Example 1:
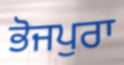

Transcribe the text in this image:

ਭੋਜਪੁਰਾ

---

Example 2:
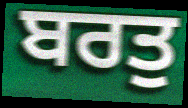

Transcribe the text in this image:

ਬਰਤੁ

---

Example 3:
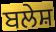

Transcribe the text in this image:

ਬਲੇਸ਼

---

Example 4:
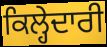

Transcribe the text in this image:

ਕਿਲ੍ਹੇਦਾਰੀ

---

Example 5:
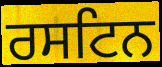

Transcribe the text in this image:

ਰਸਟਿਨ